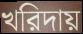
খরিদায়